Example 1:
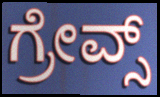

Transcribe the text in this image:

ಗ್ರೇವ್ಸ್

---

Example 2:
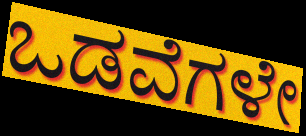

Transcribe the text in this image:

ಒಡವೆಗಳೇ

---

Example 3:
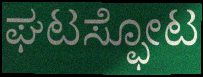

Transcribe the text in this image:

ಘಟಸ್ಫೋಟ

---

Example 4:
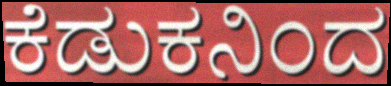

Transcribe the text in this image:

ಕೆಡುಕನಿಂದ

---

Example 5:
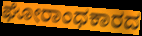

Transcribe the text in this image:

ಘೋರಾಂಧಕಾರದ